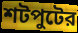
শটপুটের